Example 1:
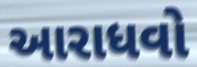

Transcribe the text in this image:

આરાધવો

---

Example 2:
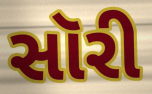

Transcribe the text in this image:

સૉરી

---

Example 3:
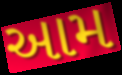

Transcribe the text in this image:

આમ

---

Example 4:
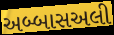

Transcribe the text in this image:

અબ્બાસઅલી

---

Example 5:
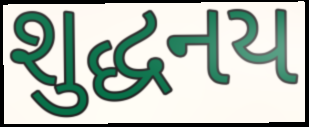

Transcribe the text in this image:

શુદ્ધનય